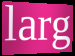
larg